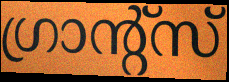
ഗ്രാന്റ്സ്